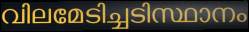
വിലമേടിച്ചടിസ്ഥാനം